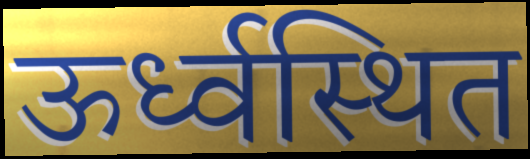
ऊर्ध्वस्थित